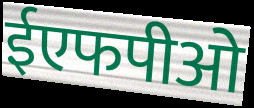
ईएफपीओ